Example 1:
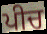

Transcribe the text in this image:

ਪੀਚ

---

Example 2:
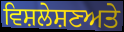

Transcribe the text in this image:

ਵਿਸ਼ਲੇਸ਼ਣਅਤੇ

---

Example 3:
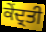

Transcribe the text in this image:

ਕੇਂਦ੍ਰਤੀ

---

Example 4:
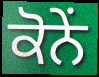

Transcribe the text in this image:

ਕੋਨੇਂ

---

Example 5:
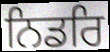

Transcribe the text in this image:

ਨਿਡਰਿ